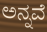
ಅನ್ನವೆ